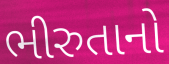
ભીરુતાનો